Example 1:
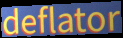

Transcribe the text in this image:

deflator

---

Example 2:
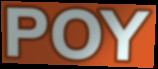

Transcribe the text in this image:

POY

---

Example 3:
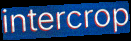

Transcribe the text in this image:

intercrop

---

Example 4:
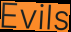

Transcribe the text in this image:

Evils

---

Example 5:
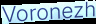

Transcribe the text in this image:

Voronezh